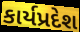
કાર્યપ્રદેશ